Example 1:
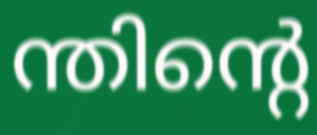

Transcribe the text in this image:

ന്തിന്റെ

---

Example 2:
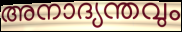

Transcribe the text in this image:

അനാദ്യന്തവും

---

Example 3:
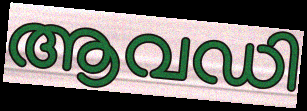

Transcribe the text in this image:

ആവഡി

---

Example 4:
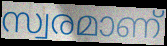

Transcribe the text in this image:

സ്വരമാണ്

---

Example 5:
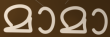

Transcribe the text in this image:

മാമാ